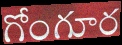
గోంగూర